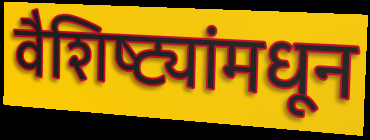
वैशिष्ट्यांमधून